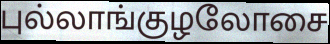
புல்லாங்குழலோசை